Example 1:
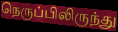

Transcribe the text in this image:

நெருப்பிலிருந்து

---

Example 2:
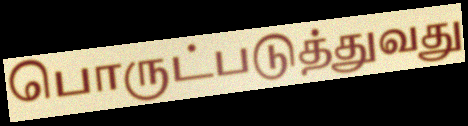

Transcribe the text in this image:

பொருட்படுத்துவது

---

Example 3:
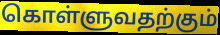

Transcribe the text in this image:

கொள்ளுவதற்கும்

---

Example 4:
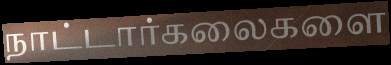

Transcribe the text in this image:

நாட்டார்கலைகளை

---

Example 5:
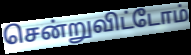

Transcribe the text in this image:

சென்றுவிட்டோம்